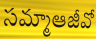
సమ్మాఆజీవో